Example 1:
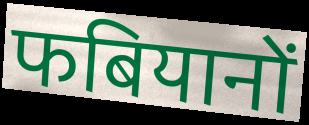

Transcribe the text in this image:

फबियानों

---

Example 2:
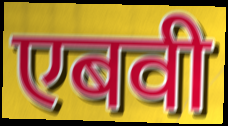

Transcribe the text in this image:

एबवी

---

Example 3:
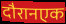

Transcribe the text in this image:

दौरानएक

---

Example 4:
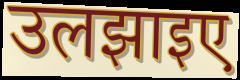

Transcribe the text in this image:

उलझाइए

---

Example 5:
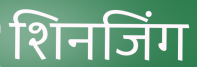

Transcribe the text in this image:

शिनजिंग